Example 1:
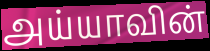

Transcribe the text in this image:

அய்யாவின்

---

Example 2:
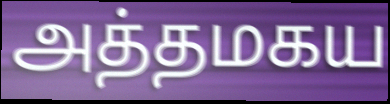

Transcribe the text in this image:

அத்தமகய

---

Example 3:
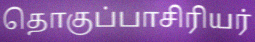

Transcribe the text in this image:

தொகுப்பாசிரியர்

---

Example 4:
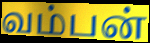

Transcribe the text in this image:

வம்பன்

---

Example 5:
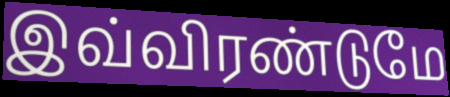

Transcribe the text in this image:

இவ்விரண்டுமே